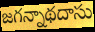
జగన్నాథదాసు